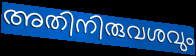
അതിനിരുവശവും